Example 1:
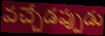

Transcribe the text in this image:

వచ్చేడప్పుడు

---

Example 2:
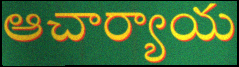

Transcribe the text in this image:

ఆచార్యాయ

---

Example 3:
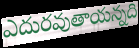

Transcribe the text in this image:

ఎదురవుతాయన్నది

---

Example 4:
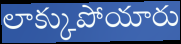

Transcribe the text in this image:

లాక్కుపోయారు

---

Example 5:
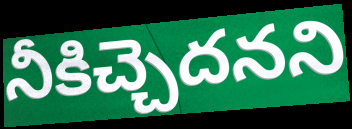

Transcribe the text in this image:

నీకిచ్చెదనని